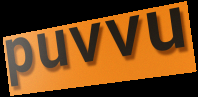
puvvu